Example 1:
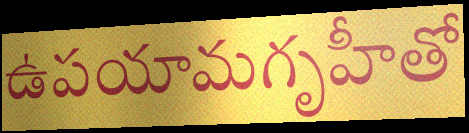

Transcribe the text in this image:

ఉపయామగృహీతో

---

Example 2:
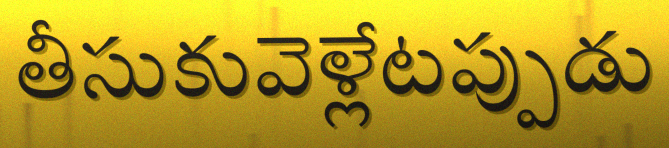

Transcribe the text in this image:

తీసుకువెళ్లేటప్పుడు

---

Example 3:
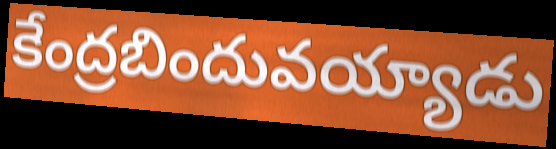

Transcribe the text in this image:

కేంద్రబిందువయ్యాడు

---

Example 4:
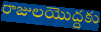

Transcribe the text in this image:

రాజులయొద్దకు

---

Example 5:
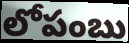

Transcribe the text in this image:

లోపంబు